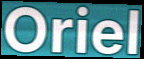
Oriel